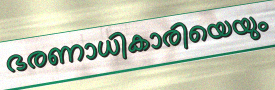
ഭരണാധികാരിയെയും